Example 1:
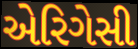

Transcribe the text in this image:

એરિગેસી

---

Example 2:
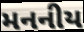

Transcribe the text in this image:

મનનીય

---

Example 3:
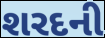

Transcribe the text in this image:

શરદની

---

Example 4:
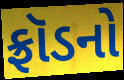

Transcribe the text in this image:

ફ્રૉડનો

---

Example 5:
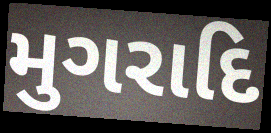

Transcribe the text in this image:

મુગરાદિ